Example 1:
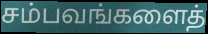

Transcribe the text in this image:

சம்பவங்களைத்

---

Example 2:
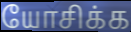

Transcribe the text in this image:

யோசிக்க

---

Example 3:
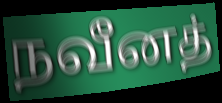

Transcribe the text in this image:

நவீனத்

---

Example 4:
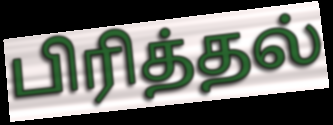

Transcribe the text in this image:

பிரித்தல்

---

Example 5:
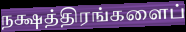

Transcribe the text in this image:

நக்ஷத்திரங்களைப்